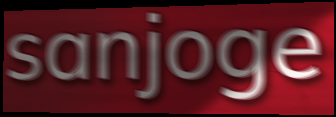
sanjoge